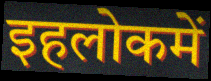
इहलोकमें